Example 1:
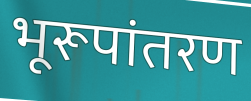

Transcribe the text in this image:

भूरूपांतरण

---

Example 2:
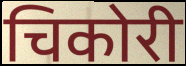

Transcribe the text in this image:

चिकोरी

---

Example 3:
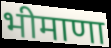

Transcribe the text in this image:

भीमाणा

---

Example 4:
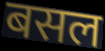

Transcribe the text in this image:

बसल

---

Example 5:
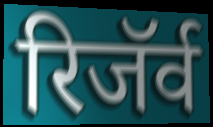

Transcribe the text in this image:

रिजॅर्व